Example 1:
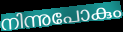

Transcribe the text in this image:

നിന്നുപോകും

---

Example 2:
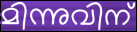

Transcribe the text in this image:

മിന്നുവിന്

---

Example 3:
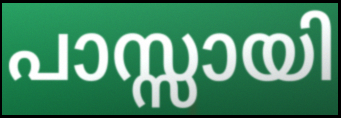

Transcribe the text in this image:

പാസ്സായി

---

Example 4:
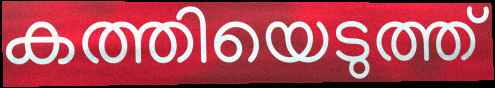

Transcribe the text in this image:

കത്തിയെടുത്ത്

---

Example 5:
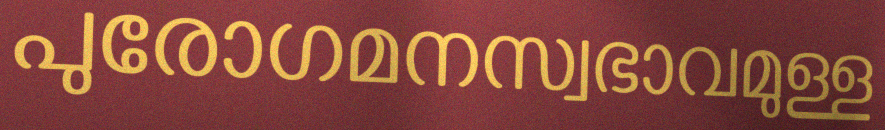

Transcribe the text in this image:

പുരോഗമനസ്വഭാവമുള്ള